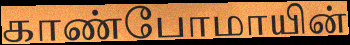
காண்போமாயின்